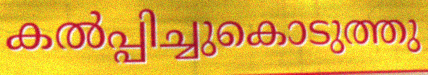
കൽപ്പിച്ചുകൊടുത്തു